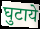
घुटाये